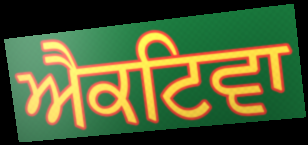
ਐਕਟਿਵਾ